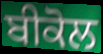
ਬੀਕੋਲ